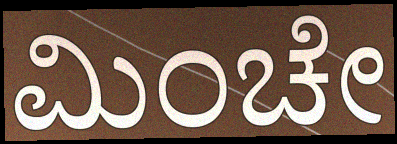
ಮಿಂಚೇ